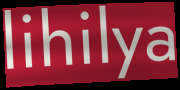
lihilya